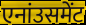
एनांउसमेंट